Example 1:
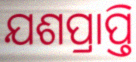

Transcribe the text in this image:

ଯଶପ୍ରାପ୍ତି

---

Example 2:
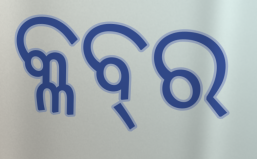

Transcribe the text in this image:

କ୍ଳବ୍‍ର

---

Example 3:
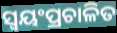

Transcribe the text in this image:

ସ୍ୱୟଂପ୍ରଚାଳିତ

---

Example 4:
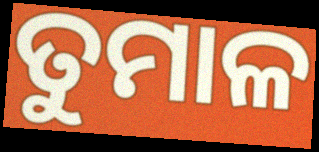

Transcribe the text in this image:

ତୁମାଳ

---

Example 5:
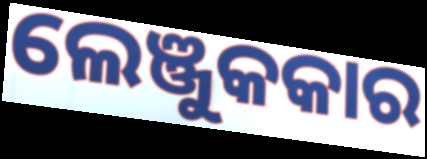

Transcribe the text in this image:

ଲେଞ୍ଜୁକକାର